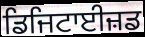
ਡਿਜਿਟਾਈਜ਼ਡ